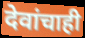
देवांचाही